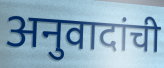
अनुवादांची